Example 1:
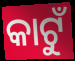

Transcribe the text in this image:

କାଟୁଁ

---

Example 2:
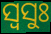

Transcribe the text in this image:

ସ୍ଵସୁଃ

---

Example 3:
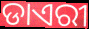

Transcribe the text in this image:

ଡାଏରୀ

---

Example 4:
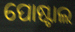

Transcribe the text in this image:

ପୋଷ୍ଟାଲ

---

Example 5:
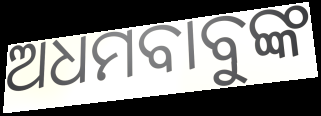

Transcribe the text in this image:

ଅଧମବାବୁଙ୍କ